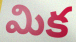
మిక